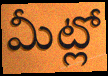
మీట్లో